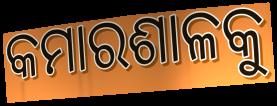
କମାରଶାଳକୁ